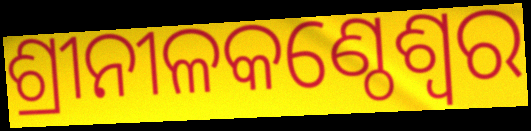
ଶ୍ରୀନୀଳକଣ୍ଠେଶ୍ଵର